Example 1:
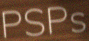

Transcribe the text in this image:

PSPs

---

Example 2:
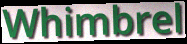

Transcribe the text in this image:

Whimbrel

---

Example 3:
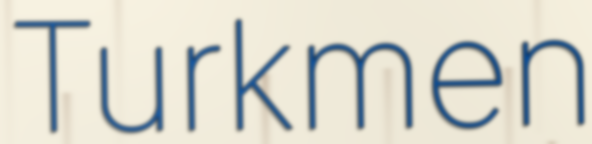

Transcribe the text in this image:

Turkmen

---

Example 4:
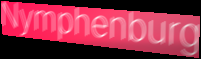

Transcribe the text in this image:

Nymphenburg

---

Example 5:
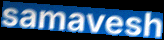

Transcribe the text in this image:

samavesh